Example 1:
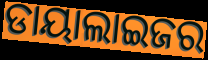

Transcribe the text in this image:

ଡାୟାଲାଇଜର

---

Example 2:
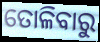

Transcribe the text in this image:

ତୋଳିବାରୁ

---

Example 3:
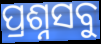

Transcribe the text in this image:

ପ୍ରଶ୍ନସବୁ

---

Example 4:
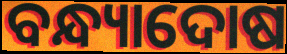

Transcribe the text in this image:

ବନ୍ଧ୍ୟାଦୋଷ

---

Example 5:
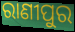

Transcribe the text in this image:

ରାଣୀପୁର